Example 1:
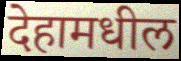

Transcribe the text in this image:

देहामधील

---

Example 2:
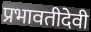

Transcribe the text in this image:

प्रभावतीदेवी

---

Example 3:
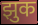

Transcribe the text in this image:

झुक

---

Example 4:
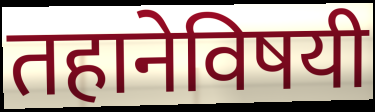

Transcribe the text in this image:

तहानेविषयी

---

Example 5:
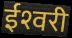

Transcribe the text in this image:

ईश्वरी